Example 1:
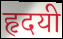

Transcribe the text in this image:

हृदयी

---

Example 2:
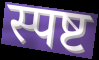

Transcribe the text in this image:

स्पष्ट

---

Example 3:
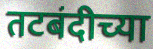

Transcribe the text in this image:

तटबंदीच्या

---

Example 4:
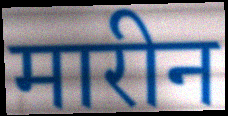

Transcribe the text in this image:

मारीन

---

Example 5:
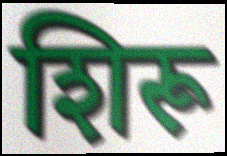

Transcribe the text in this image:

शिरू